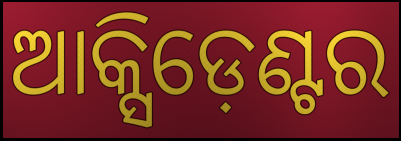
ଆକ୍ସିଡ଼େଣ୍ଟର